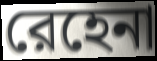
রেহেনা